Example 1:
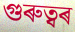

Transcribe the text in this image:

গুৰুত্বৰ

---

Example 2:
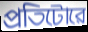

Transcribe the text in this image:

প্ৰতিটোৱে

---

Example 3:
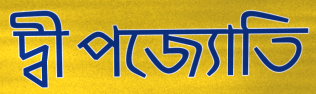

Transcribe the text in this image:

দ্বীপজ্যোতি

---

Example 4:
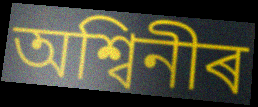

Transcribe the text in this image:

অশ্বিনীৰ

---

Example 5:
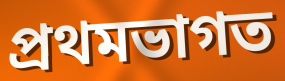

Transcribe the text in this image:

প্ৰথমভাগত